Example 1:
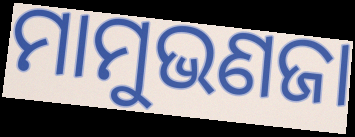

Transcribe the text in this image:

ମାମୁଭଣଜା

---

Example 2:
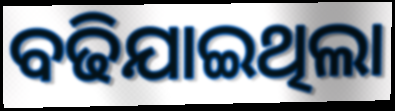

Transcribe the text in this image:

ବଢିଯାଇଥିଲା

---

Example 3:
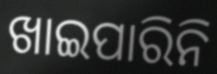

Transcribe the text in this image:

ଖାଇପାରିନି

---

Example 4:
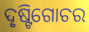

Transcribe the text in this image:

ଦୃଷ୍ଟିଗୋଚର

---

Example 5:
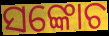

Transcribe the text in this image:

ସଙ୍କୋଚ